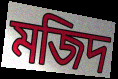
মজিদ